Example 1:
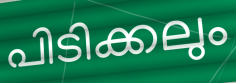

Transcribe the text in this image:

പിടിക്കലും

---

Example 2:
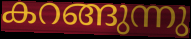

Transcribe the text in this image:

കറങ്ങുന്നു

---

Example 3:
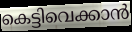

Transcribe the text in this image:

കെട്ടിവെക്കാൻ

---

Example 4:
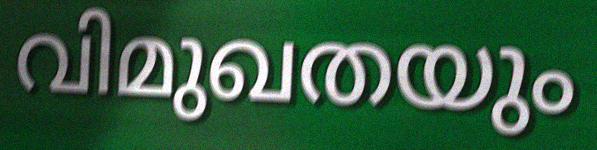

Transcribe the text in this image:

വിമുഖതയും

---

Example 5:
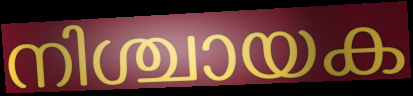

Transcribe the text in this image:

നിശ്ചായക